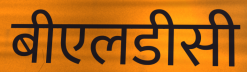
बीएलडीसी